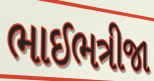
ભાઈભત્રીજા